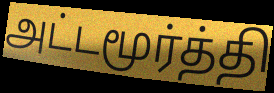
அட்டமூர்த்தி